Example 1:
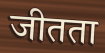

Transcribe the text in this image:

जीतता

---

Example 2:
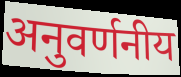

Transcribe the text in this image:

अनुवर्णनीय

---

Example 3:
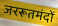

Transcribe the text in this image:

जररूतमंदों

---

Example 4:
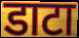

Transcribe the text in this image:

डाटा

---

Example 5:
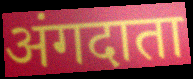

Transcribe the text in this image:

अंगदाता